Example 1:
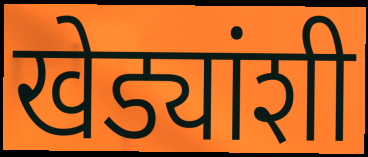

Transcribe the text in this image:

खेड्यांशी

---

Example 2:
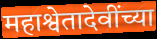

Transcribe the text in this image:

महाश्वेतादेवींच्या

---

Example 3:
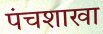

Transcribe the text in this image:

पंचशाखा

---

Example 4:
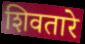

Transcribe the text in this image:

शिवतारे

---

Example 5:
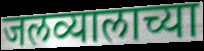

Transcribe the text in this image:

जलव्यालाच्या